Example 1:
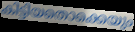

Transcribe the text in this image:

കിട്ടിയതൊക്കെയും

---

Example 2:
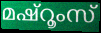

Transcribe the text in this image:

മഷ്റൂംസ്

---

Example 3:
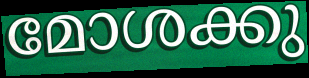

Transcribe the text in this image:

മോശക്കു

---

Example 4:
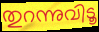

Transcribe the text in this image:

തുറന്നുവിടൂ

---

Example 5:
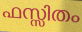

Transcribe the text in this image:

ഫസ്സിതം